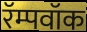
रॅम्पवॉक